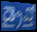
డ్రైవ్తో